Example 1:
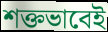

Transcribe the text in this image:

শক্তভাবেই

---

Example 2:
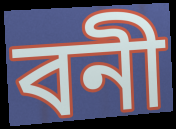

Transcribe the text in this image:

বনী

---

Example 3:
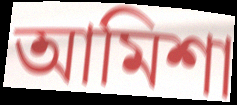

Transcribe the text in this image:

আমিশা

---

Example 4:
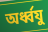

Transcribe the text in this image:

অর্ধ্বযু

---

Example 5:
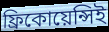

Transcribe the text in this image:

ফ্রিকোয়েন্সিই